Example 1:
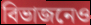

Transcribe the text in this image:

বিভাজনেও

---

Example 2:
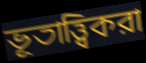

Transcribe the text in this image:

ভূতাত্ত্বিকরা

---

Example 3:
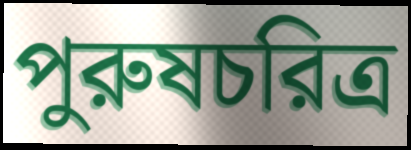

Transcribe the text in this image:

পুরুষচরিত্র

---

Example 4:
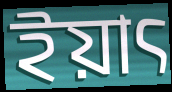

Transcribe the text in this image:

ইয়াৎ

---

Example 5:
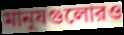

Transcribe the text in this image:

মানুষগুলোরও